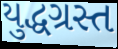
યુદ્ધગ્રસ્ત